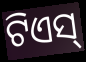
ଟିଏସ୍